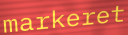
markeret